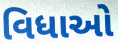
વિધાઓ